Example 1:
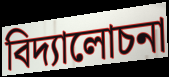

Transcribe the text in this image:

বিদ্যালোচনা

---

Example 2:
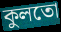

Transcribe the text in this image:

কুলতো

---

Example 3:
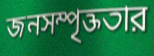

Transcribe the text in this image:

জনসম্পৃক্ততার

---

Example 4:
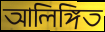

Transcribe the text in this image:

আলিঙ্গিত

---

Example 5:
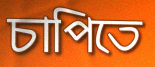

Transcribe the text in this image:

চাপিতে